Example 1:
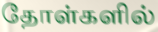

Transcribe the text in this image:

தோள்களில்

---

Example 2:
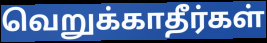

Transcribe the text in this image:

வெறுக்காதீர்கள்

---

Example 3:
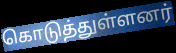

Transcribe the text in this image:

கொடுத்துள்ளனர்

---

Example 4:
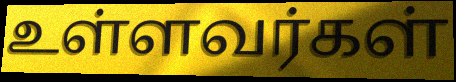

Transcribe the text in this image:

உள்ளவர்கள்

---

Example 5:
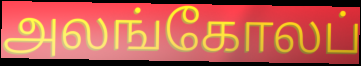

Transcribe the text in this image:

அலங்கோலப்